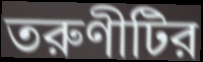
তরুণীটির